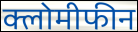
क्लोमीफीन